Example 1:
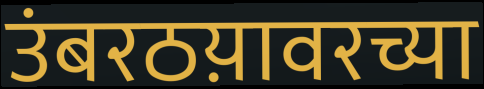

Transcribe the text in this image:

उंबरठय़ावरच्या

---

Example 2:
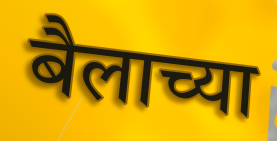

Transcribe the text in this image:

बैलाच्या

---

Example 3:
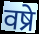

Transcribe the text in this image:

वष्रे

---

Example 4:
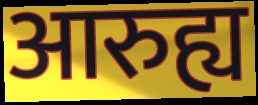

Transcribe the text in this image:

आरुह्य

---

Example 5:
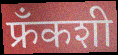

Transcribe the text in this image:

फ्रँकशी